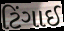
ટિંગાઈ